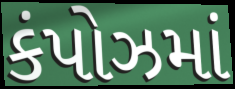
કંપોઝમાં